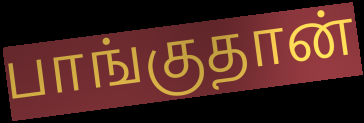
பாங்குதான்